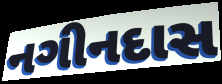
નગીનદાસ